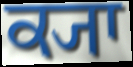
ਕ੍ਯਾ